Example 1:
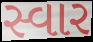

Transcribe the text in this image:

સ્વાર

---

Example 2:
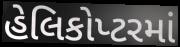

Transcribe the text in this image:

હેલિકોપ્ટરમાં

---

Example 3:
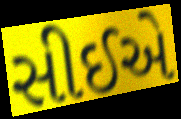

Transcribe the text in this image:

સીઈએ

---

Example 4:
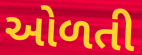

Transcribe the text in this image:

ઓળતી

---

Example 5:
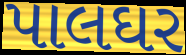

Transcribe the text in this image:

પાલઘર